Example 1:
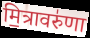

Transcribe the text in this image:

मि॒त्रावरु॑णा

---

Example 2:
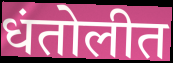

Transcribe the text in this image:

धंतोलीत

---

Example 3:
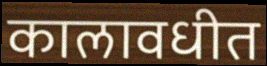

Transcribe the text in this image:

कालावधीत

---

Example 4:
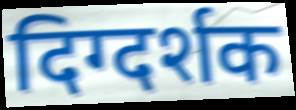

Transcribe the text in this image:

दिग्दर्शक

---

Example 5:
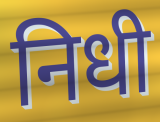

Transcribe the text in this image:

निधी